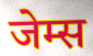
जेम्स